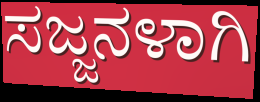
ಸಜ್ಜನಳಾಗಿ